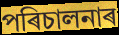
পৰিচালনাৰ